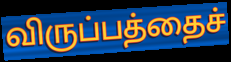
விருப்பத்தைச்